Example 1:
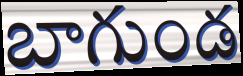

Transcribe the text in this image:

బాగుండ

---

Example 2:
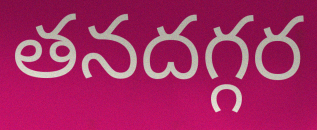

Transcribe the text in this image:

తనదగ్గర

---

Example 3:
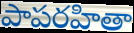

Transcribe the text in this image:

పాపరహితా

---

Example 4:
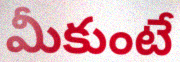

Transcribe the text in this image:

మీకుంటే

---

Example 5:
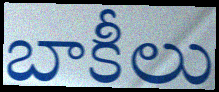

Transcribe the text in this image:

బాకీలు